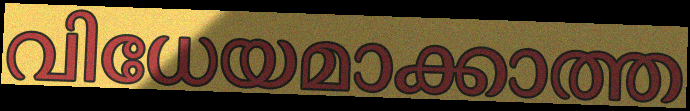
വിധേയമാക്കാത്ത